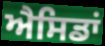
ਐਸਿਡਾਂ